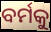
ବର୍ମକୁ